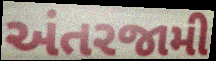
અંતરજામી